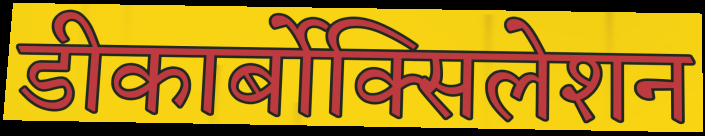
डीकार्बोक्सिलेशन